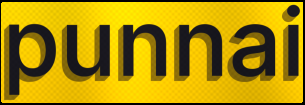
punnai